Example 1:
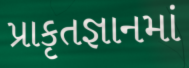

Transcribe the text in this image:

પ્રાકૃતજ્ઞાનમાં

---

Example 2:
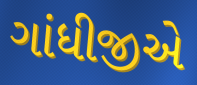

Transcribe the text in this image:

ગાંધીજીએ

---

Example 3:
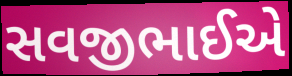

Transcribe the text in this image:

સવજીભાઈએ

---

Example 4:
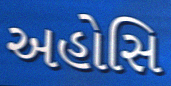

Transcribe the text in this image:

અહોસિ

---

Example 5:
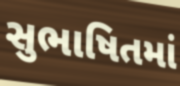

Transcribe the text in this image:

સુભાષિતમાં